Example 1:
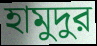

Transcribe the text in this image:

হামুদুর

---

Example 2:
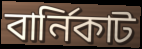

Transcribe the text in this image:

বার্নিকাট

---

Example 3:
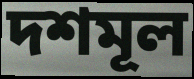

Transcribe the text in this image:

দশমূল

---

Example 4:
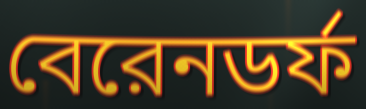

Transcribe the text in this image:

বেরেনডর্ফ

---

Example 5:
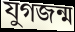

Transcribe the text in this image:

যুগজন্ম